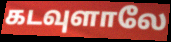
கடவுளாலே